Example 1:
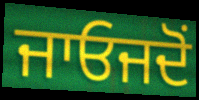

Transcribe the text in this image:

ਜਾਓਜਦੋਂ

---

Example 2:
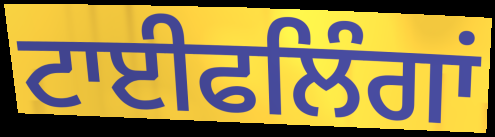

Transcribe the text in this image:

ਟਾਈਫਲਿੰਗਾਂ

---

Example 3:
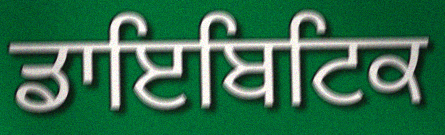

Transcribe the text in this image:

ਡਾਇਬਿਟਿਕ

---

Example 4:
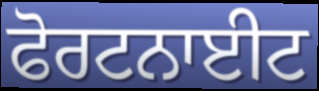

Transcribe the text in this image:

ਫੋਰਟਨਾਈਟ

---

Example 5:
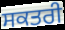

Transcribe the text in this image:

ਸਕਤਰੀ